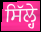
ਸਿੱਲ੍ਹੇ